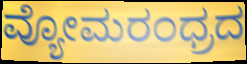
ವ್ಯೋಮರಂಧ್ರದ